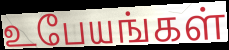
உபேயங்கள்